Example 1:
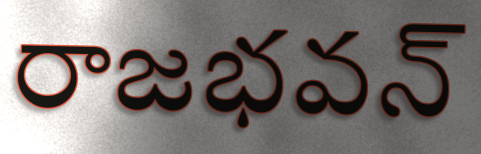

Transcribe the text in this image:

రాజభవన్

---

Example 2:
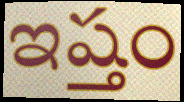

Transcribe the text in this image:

ఇష్తం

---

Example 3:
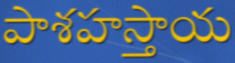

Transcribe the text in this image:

పాశహస్తాయ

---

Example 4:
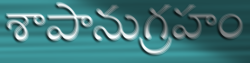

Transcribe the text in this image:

శాపానుగ్రహం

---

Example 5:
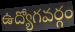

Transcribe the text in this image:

ఉద్యోగవర్గం